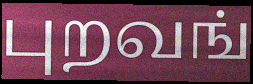
புறவங்